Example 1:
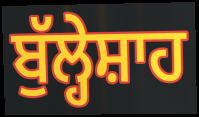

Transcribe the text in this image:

ਬੁੱਲ੍ਹੇਸ਼ਾਹ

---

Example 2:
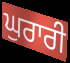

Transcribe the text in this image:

ਘੁਰਾਰੀ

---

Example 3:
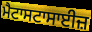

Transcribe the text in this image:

ਮੈਟਾਸਟਾਸਾਈਜ਼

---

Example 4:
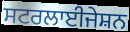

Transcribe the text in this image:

ਸਟਰਲਾਈਜੇਸ਼ਨ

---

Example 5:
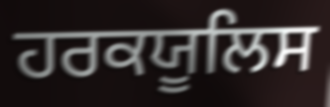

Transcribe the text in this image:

ਹਰਕਯੂਲਿਸ